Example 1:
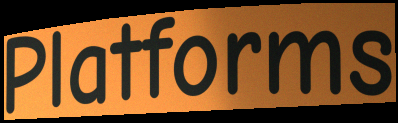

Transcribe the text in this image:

Platforms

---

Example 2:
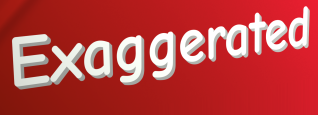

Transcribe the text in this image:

Exaggerated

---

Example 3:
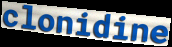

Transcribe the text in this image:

clonidine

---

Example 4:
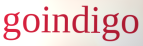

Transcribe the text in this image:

goindigo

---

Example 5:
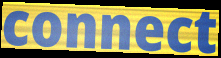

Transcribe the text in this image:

connect